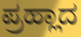
ಪ್ರಹ್ಲಾದ